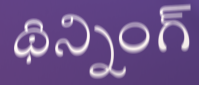
థిన్నింగ్